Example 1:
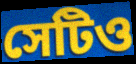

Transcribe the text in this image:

সেটিও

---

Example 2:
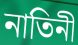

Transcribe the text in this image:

নাতিনী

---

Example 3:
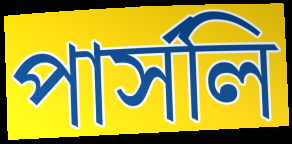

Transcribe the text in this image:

পার্সলি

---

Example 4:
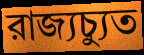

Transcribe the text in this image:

রাজ্যচ্যুত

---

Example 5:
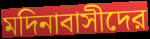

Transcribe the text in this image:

মদিনাবাসীদের